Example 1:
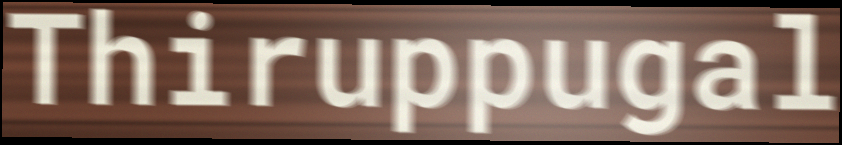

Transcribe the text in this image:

Thiruppugal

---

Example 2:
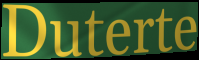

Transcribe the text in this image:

Duterte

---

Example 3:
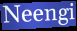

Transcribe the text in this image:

Neengi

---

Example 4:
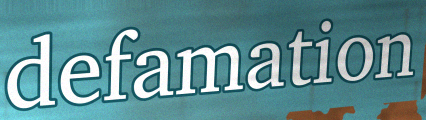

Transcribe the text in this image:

defamation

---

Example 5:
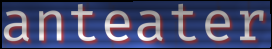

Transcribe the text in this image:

anteater